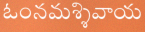
ఓంనమశ్శివాయ